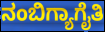
ನಂಬಿಗ್ಯಾಗೈತಿ